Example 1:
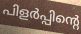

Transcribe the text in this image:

പിളർപ്പിന്റെ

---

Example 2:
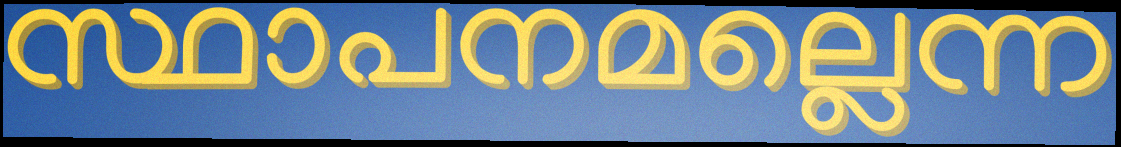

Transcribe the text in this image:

സ്ഥാപനമല്ലെന്ന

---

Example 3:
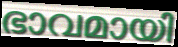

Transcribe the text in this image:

ഭാവമായി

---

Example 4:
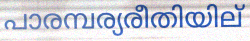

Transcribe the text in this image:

പാരമ്പര്യരീതിയില്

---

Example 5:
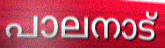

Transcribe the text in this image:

പാലനാട്